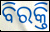
ବିରକ୍ତି